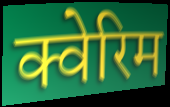
क्वेरिम